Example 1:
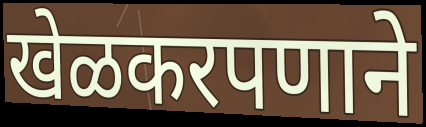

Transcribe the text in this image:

खेळकरपणाने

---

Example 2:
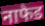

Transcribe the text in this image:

नाफेड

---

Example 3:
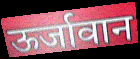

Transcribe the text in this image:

ऊर्जावान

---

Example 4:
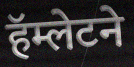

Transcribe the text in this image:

हॅम्लेटने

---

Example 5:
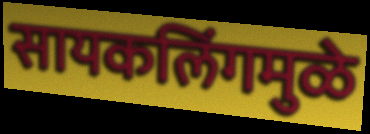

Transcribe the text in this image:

सायकलिंगमुळे